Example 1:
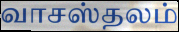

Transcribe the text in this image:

வாசஸ்தலம்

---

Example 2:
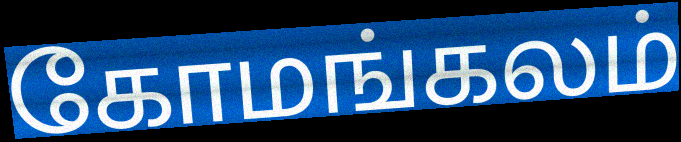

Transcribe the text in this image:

கோமங்கலம்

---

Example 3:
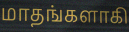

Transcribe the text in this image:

மாதங்களாகி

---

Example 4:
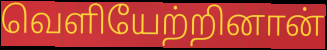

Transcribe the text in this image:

வெளியேற்றினான்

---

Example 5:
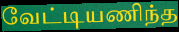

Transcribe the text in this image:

வேட்டியணிந்த